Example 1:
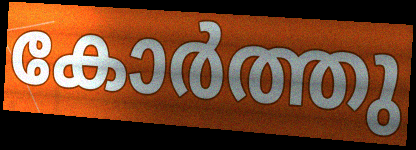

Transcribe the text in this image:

കോർത്തു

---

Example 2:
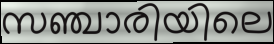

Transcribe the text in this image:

സഞ്ചാരിയിലെ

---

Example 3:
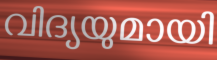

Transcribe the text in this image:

വിദ്യയുമായി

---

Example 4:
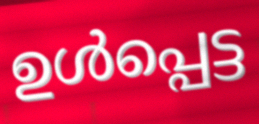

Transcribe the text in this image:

ഉൾപ്പെട്ട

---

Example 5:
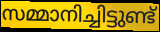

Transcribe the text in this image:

സമ്മാനിച്ചിട്ടുണ്ട്